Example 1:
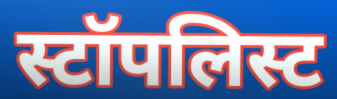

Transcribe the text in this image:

स्टॉपलिस्ट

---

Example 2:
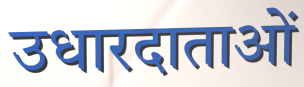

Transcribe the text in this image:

उधारदाताओं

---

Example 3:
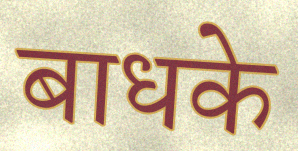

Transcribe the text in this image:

बाधके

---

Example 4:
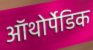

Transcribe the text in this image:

ऑथोर्पेडिक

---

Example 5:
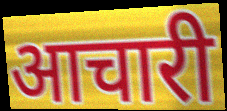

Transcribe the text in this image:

आचारी